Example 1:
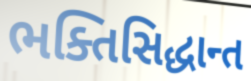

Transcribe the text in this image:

ભક્તિસિદ્ધાન્ત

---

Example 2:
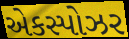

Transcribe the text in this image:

એકસ્પોઝર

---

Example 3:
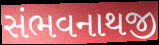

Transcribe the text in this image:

સંભવનાથજી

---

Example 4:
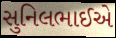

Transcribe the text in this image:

સુનિલભાઈએ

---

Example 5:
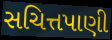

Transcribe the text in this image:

સચિત્તપાણી